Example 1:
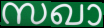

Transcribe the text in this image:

സഖാ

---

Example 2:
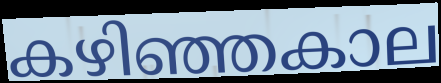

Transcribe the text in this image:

കഴിഞ്ഞകാല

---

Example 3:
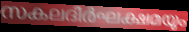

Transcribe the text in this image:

സകലദീർഘക്ഷമയും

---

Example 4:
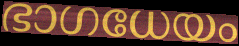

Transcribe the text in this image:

ഭാഗധേയം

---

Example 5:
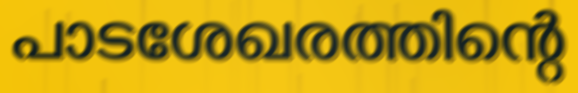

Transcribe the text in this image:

പാടശേഖരത്തിന്റെ